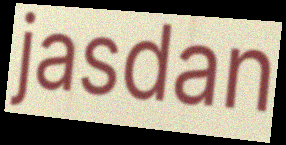
jasdan